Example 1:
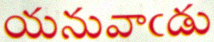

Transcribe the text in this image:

యనువాఁడు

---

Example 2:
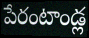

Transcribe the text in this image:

పేరంటాండ్ల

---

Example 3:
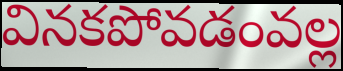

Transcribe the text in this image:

వినకపోవడంవల్ల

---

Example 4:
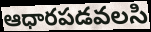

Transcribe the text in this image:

ఆధారపడవలసి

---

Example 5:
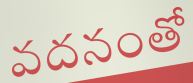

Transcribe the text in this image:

వదనంతో